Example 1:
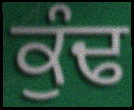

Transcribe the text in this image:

ਕੁੰਢ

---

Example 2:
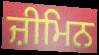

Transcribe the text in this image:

ਜ਼ੀਮਿਨ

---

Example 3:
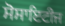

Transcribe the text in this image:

ਸੋਸਾਇਟੀਜ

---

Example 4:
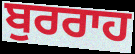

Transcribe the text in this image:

ਬੁਰਰਾਹ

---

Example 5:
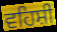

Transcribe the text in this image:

ਵਹਿਸ਼ੀ